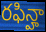
రఫిన్హా